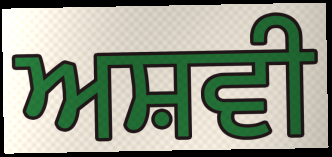
ਅਸ਼ਵੀ